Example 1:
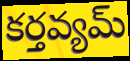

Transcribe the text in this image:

కర్తవ్యమ్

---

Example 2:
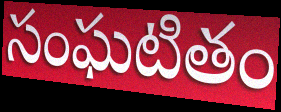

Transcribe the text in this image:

సంఘటితం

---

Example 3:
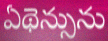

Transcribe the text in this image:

ఏథెన్సును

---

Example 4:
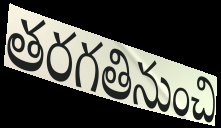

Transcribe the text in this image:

తరగతినుంచి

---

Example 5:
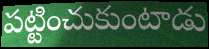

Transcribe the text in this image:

పట్టించుకుంటాడు